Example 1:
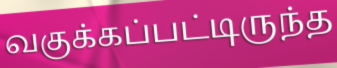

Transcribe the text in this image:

வகுக்கப்பட்டிருந்த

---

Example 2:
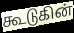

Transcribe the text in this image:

கூடுகின்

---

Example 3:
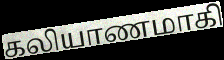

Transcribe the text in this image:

கலியாணமாகி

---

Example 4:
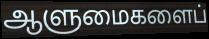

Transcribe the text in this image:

ஆளுமைகளைப்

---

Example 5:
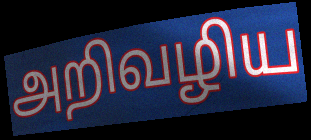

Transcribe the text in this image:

அறிவழிய